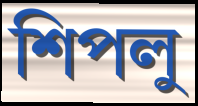
শিপলু